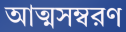
আত্মসম্বরণ